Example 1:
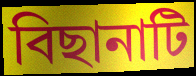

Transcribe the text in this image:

বিছানাটি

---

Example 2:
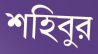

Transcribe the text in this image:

শহিবুর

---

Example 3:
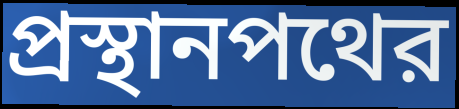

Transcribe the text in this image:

প্রস্থানপথের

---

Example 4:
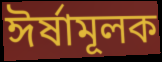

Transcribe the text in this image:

ঈর্ষামূলক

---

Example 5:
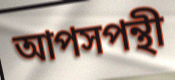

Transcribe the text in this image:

আপসপন্থী